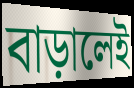
বাড়ালেই